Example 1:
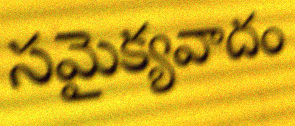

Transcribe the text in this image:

సమైక్యవాదం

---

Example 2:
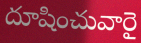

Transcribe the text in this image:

దూషించువారై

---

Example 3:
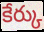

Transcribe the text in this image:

కేర్కు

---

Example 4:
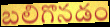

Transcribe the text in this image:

బలిగొనడం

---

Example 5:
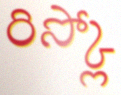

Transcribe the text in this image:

రిస్క్లో